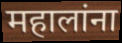
महालांना